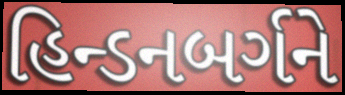
હિન્ડનબર્ગને